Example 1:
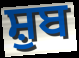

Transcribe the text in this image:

ਸ਼ੁਬ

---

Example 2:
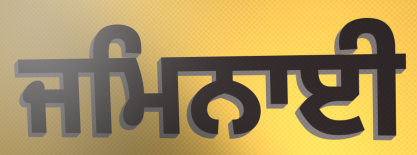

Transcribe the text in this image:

ਜਮਿਨਾਈ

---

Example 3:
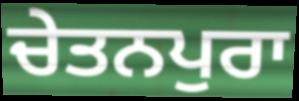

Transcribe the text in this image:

ਚੇਤਨਪੁਰਾ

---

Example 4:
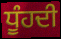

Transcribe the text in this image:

ਧੂੰਹਦੀ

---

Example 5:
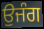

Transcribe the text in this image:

ਉਜੰਗ